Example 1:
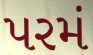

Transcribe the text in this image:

પરમં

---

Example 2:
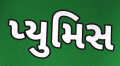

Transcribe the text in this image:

પ્યુમિસ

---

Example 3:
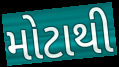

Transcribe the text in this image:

મોટાથી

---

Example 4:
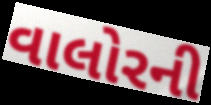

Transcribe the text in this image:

વાલોરની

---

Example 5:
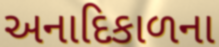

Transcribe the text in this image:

અનાદિકાળના